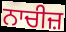
ਨਾਚੀਜ਼